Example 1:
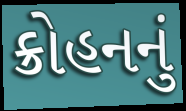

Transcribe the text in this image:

ક્રોહનનું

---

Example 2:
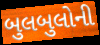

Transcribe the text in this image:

બુલબુલોની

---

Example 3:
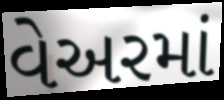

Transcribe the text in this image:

વેઅરમાં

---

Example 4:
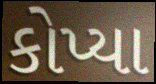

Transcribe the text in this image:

કોપ્યા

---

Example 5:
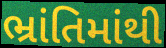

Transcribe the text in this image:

ભ્રાંતિમાંથી